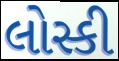
લોસ્કી